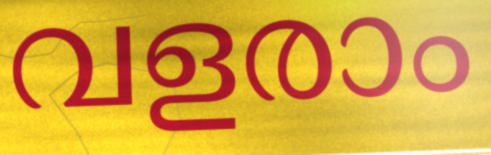
വളരാം